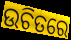
ଉଚିତରେ